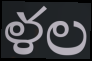
ళల